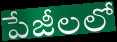
పేజీలలో